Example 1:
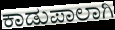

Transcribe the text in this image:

ಕಾಡುಪಾಲಾಗಿ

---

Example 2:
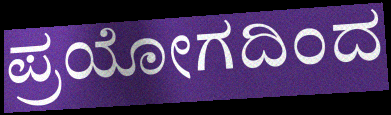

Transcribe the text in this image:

ಪ್ರಯೋಗದಿಂದ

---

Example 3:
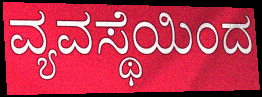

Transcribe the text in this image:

ವ್ಯವಸ್ಥೆಯಿಂದ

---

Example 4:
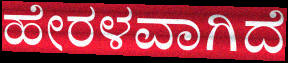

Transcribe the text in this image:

ಹೇರಳವಾಗಿದೆ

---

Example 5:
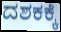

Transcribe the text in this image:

ದಶಕಕ್ಕೆ